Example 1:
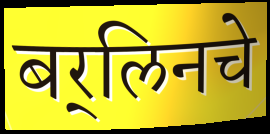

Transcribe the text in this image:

बर्लिनचे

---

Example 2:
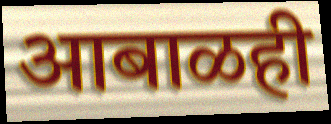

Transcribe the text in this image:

आबाळही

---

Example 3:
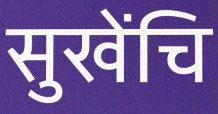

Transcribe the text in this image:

सुखेंचि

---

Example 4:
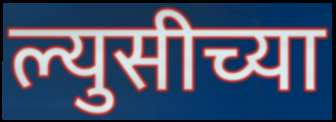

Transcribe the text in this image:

ल्युसीच्या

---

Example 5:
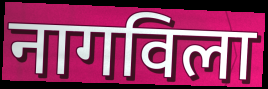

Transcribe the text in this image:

नागविला